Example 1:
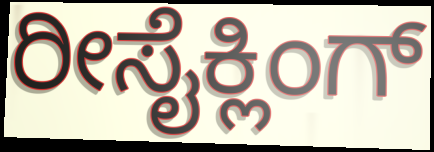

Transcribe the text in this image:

ರೀಸೈಕ್ಲಿಂಗ್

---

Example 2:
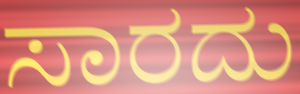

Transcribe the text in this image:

ಸಾರದು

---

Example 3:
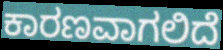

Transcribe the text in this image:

ಕಾರಣವಾಗಲಿದೆ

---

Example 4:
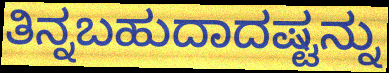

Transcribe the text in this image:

ತಿನ್ನಬಹುದಾದಷ್ಟನ್ನು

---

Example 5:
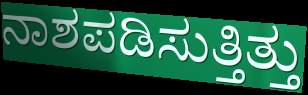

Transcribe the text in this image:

ನಾಶಪಡಿಸುತ್ತಿತ್ತು